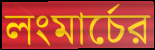
লংমার্চের